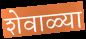
शेवाळ्या